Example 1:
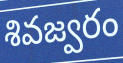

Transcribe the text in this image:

శివజ్వరం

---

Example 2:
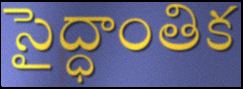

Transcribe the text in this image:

సైద్ధాంతిక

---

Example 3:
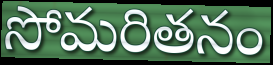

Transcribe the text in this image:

సోమరితనం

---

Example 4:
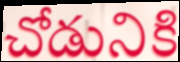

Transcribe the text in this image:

చోడునికి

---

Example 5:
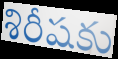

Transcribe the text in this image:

శిరీషకు